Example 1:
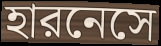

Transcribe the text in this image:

হারনেসে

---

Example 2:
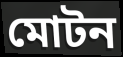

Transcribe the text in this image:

মোটন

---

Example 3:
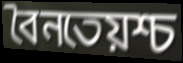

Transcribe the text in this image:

বৈনতেয়শ্চ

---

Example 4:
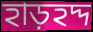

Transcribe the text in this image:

হাড়হদ্দ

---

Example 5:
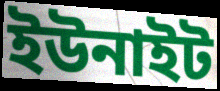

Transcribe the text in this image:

ইউনাইট